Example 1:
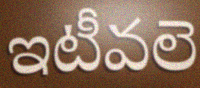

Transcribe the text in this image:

ఇటీవలె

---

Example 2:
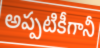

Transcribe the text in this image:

అప్పటికీగానీ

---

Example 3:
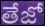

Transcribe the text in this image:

తేజో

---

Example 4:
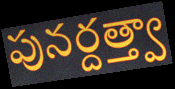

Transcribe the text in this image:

పునర్దత్త్వా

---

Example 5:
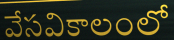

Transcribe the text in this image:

వేసవికాలంలో